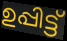
ഉപ്പിട്ട്